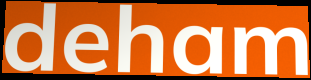
deham